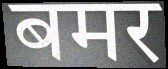
बमर